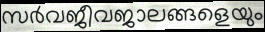
സർവജീവജാലങ്ങളെയും